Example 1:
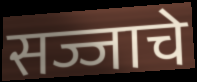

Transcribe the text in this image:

सज्जाचे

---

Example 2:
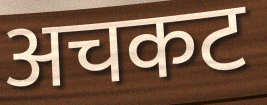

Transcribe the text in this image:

अचकट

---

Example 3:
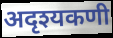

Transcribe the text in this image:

अदृश्यकणी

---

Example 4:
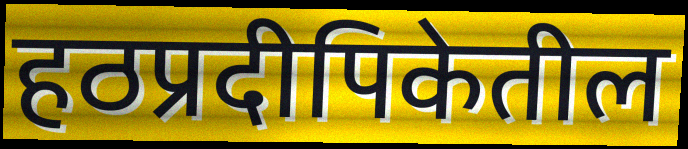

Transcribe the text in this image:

हठप्रदीपिकेतील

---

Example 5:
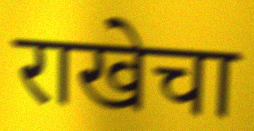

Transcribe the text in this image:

राखेचा